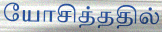
யோசித்ததில்